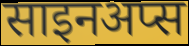
साइनअप्स